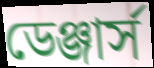
ডেঞ্জার্স